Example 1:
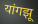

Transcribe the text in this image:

यांगझू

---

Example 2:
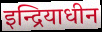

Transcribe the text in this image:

इन्द्रियाधीन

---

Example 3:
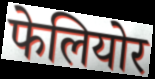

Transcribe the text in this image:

फेलियोर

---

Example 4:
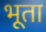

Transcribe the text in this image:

भूता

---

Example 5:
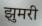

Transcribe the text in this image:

झुमरी